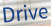
Drive